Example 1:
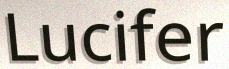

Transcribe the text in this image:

Lucifer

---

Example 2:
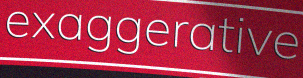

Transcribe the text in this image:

exaggerative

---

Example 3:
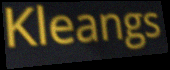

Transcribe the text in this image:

Kleangs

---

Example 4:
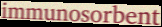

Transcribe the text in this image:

immunosorbent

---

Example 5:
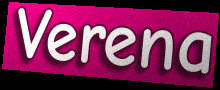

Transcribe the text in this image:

Verena